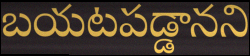
బయటపడ్డానని